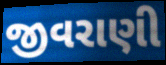
જીવરાણી